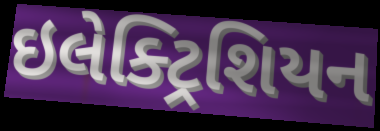
ઇલેક્ટ્રિશિયન